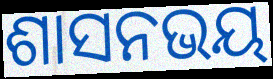
ଶାସନଭୟ